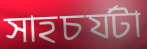
সাহচর্যটা